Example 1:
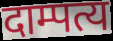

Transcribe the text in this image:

दाम्पत्य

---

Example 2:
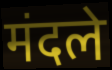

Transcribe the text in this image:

मंदले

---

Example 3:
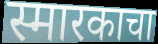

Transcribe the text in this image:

स्मारकाचा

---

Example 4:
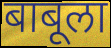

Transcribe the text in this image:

बाबूला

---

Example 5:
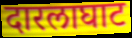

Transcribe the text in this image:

दारलाघाट